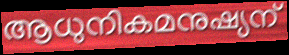
ആധുനികമനുഷ്യന്